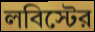
লবিস্টের